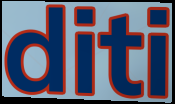
diti